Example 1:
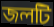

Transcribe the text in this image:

জলটি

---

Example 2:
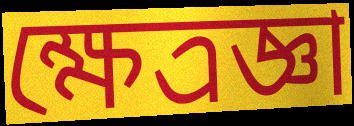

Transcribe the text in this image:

ক্ষেত্রজ্ঞা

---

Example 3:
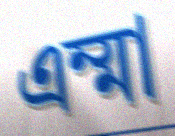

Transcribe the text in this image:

এম্মা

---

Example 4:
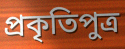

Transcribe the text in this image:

প্রকৃতিপুত্র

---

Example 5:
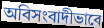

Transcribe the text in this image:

অবিসংবাদীভাবে